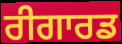
ਰੀਗਾਰਡ